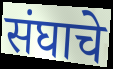
संघाचे